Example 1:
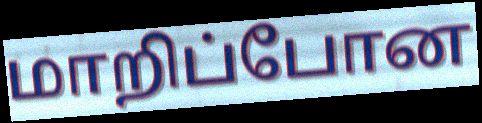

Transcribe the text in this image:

மாறிப்போன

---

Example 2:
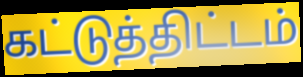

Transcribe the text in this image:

கட்டுத்திட்டம்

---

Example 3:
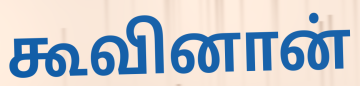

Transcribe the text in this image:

கூவினான்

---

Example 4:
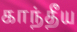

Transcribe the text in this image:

காந்தீய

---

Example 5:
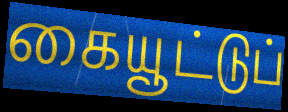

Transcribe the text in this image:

கையூட்டுப்